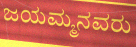
ಜಯಮ್ಮನವರು